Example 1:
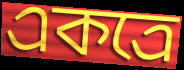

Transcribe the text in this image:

একত্ৰে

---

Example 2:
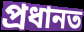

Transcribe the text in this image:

প্ৰধানত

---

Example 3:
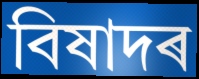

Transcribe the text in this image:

বিষাদৰ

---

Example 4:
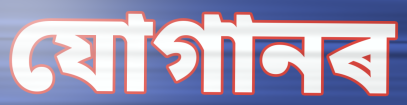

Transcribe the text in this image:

যোগানৰ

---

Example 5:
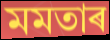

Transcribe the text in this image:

মমতাৰ